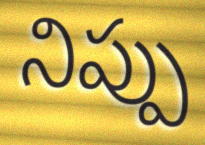
నిప్పు